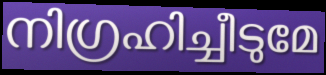
നിഗ്രഹിച്ചീടുമേ